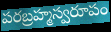
పరబ్రహ్మస్వరూపం